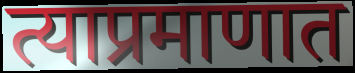
त्याप्रमाणात